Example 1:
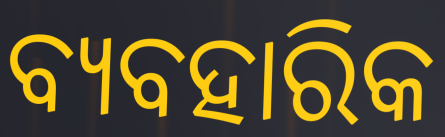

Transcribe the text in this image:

ବ୍ଯବହାରିକ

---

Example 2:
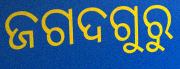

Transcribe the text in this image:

ଜଗଦଗୁରୁ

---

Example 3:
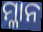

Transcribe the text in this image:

ମ୍ଳାନ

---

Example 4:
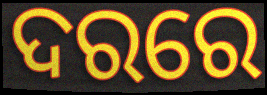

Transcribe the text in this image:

ଦରରେ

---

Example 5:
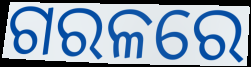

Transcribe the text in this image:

ଗରଳରେ